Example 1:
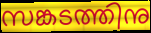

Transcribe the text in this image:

സങ്കടത്തിനു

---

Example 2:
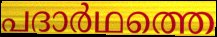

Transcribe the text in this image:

പദാർഥത്തെ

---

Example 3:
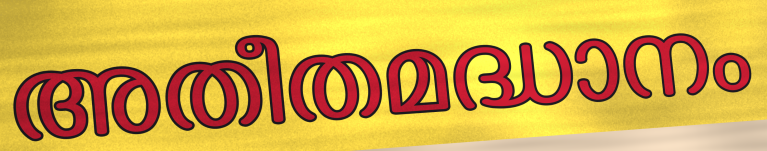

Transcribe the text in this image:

അതീതമദ്ധാനം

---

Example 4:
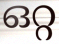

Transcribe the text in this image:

ഒറ്റ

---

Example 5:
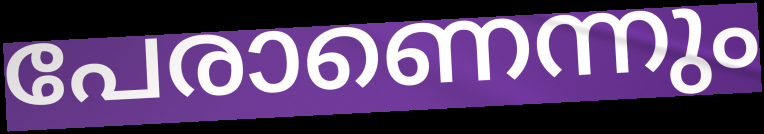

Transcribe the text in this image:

പേരാണെന്നും